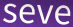
seve